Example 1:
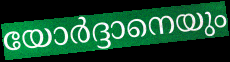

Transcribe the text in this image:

യോർദ്ദാനെയും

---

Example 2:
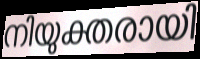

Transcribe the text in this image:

നിയുക്തരായി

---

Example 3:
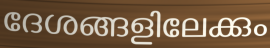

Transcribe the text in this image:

ദേശങ്ങളിലേക്കും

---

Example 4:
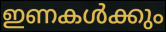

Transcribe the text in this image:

ഇണകൾക്കും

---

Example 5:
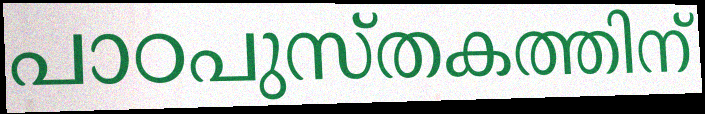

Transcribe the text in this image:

പാഠപുസ്തകത്തിന്